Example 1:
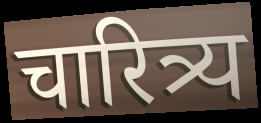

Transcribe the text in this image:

चारित्र्य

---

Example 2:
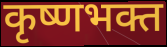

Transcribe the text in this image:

कृष्णभक्त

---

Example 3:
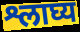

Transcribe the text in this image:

श्लाघ्य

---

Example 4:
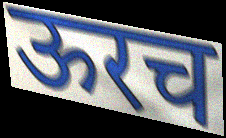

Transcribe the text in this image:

ऊरच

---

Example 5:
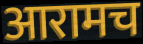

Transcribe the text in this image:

आरामच